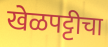
खेळपट्टीचा